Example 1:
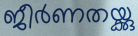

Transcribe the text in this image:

ജീർണതയ്ക്കു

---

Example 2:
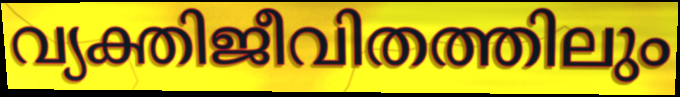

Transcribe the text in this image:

വ്യക്തിജീവിതത്തിലും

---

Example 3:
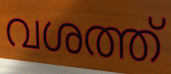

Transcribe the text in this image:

വശത്ത്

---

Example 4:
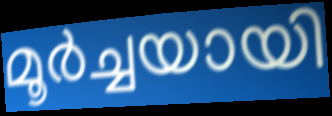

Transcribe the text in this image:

മൂർച്ചയായി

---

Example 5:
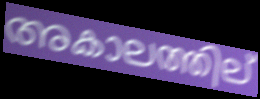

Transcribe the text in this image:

അകാലത്തില്